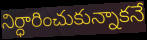
నిర్ధారించుకున్నాకనే